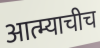
आत्म्याचीच